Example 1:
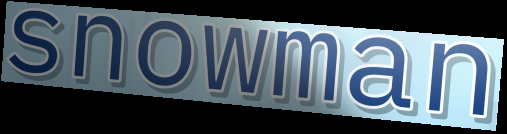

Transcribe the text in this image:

snowman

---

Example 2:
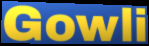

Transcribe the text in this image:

Gowli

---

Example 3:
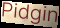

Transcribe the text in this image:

Pidgin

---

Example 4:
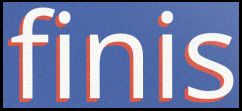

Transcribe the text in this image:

finis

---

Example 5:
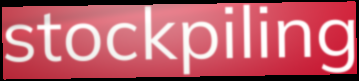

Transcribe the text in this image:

stockpiling